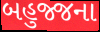
બહુજ્જના